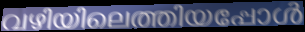
വഴിയിലെത്തിയപ്പോൾ